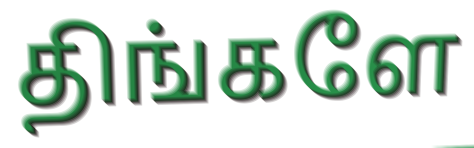
திங்களே